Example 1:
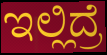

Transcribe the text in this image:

ಇಲ್ಲಿದ್ರೆ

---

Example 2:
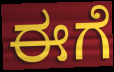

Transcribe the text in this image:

ಈಗೆ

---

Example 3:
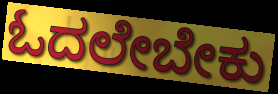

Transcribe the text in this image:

ಓದಲೇಬೇಕು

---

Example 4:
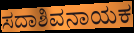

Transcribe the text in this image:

ಸದಾಶಿವನಾಯಕ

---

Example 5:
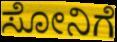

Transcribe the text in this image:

ಸೋನಿಗೆ